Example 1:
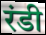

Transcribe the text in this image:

रंडी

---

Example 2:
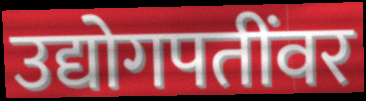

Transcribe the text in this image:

उद्योगपतींवर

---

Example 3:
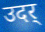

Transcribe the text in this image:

उदर्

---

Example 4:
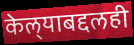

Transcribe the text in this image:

केल्याबद्दलही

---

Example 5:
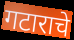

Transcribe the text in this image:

गटाराचे